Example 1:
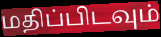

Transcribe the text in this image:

மதிப்பிடவும்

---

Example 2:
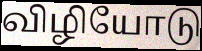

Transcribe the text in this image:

விழியோடு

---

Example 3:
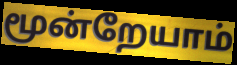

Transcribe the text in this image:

மூன்றேயாம்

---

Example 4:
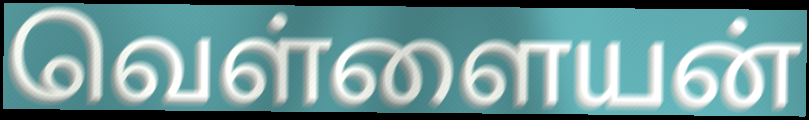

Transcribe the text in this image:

வெள்ளையன்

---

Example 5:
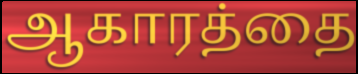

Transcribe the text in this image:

ஆகாரத்தை